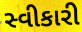
સ્વીકારી